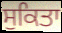
ਸੁਕਿਤਾ